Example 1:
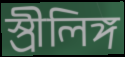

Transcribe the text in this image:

স্ত্ৰীলিঙ্গ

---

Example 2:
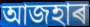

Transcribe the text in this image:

আজহাৰ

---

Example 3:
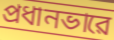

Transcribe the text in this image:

প্ৰধানভাৱে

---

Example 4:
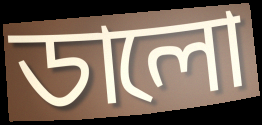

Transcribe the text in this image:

ডালো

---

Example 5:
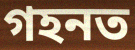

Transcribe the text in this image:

গহনত